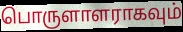
பொருளாளராகவும்